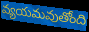
వ్యయమవుతోంది